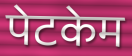
पेटकेम